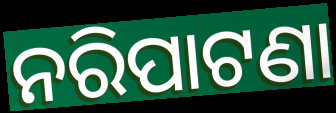
ନରିପାଟଣା